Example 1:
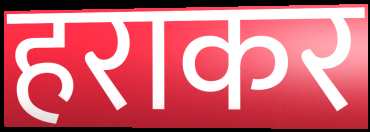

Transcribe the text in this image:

हराकर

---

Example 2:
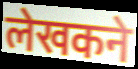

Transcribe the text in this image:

लेखकने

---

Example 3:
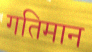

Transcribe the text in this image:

गतिमान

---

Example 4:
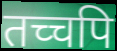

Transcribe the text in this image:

तच्चपि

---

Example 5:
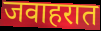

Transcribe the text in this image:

जवाहरात